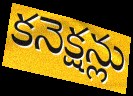
కనెక్షన్లు